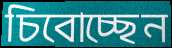
চিবোচ্ছেন